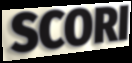
SCORI